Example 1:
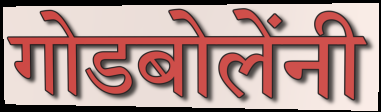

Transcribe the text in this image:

गोडबोलेंनी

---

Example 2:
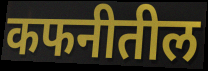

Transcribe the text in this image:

कफनीतील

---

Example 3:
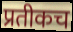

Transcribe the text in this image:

प्रतीकच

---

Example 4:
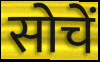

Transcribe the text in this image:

सोचें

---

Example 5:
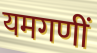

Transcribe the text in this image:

यमगणीं